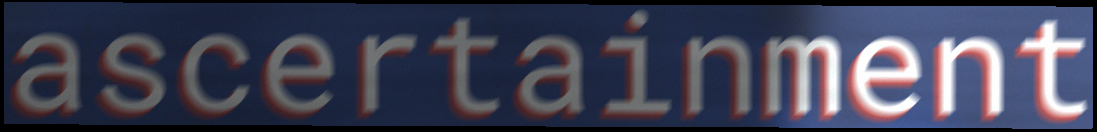
ascertainment